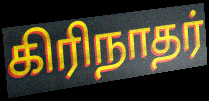
கிரிநாதர்